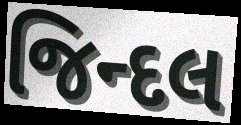
જિન્દલ